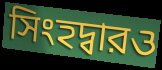
সিংহদ্বারও